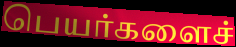
பெயர்களைச்